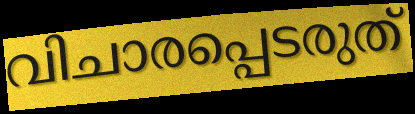
വിചാരപ്പെടരുത്